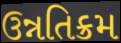
ઉન્નતિક્રમ